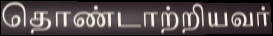
தொண்டாற்றியவர்